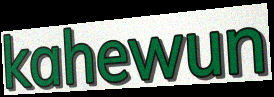
kahewun